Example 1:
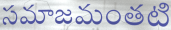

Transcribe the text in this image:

సమాజమంతటి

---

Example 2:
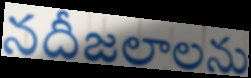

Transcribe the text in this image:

నదీజలాలను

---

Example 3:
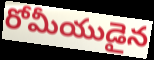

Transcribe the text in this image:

రోమీయుడైన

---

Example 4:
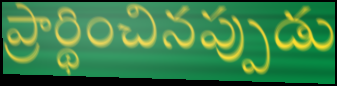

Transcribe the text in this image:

ప్రార్థించినప్పుడు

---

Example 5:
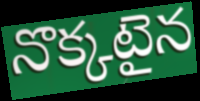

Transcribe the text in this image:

నొక్కటైన